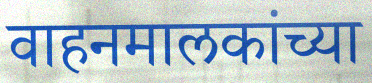
वाहनमालकांच्या